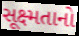
સૂક્ષ્મતાનો